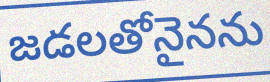
జడలతోనైనను